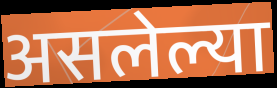
असलेल्या